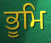
ਭੂਮਿ